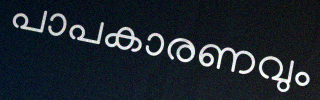
പാപകാരണവും